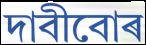
দাবীবোৰ